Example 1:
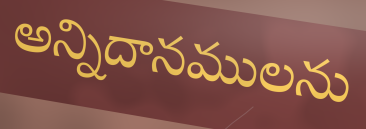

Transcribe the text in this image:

అన్నిదానములను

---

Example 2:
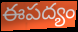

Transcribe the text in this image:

ఈపద్యం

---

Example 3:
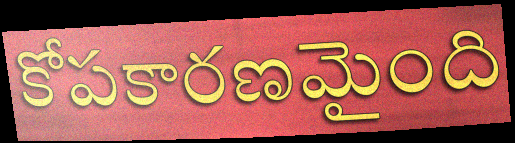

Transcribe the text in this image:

కోపకారణమైంది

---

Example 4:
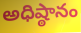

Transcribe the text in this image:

అధిష్ఠానం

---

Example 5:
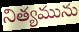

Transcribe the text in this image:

నిత్యమును